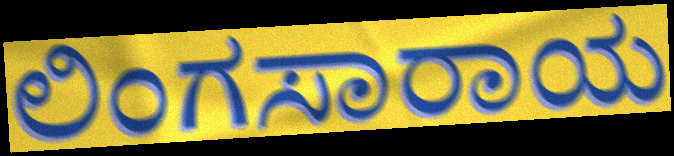
ಲಿಂಗಸಾರಾಯ